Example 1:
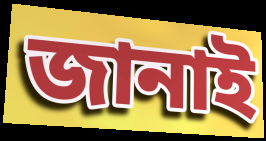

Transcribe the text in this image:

জানাই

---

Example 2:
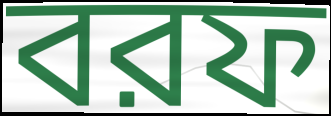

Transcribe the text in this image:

বরফ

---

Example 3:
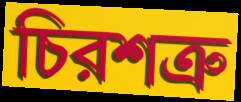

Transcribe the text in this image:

চিরশত্রু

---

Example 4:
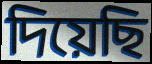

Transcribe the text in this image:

দিয়েছি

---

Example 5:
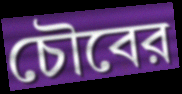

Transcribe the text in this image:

চৌবের